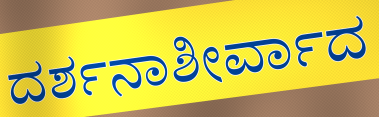
ದರ್ಶನಾಶೀರ್ವಾದ